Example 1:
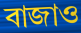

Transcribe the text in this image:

বাজাও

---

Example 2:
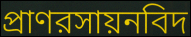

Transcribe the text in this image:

প্রাণরসায়নবিদ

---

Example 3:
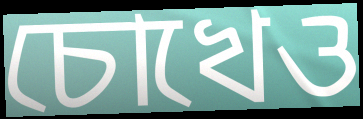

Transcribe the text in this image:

চোখেও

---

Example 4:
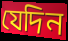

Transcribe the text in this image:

যেদিন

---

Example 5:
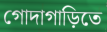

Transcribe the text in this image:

গোদাগাড়িতে